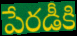
పేరడీకి